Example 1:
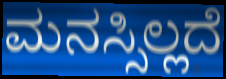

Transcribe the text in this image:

ಮನಸ್ಸಿಲ್ಲದೆ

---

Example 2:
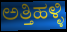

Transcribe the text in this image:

ಅತ್ತಿಹಳ್ಳಿ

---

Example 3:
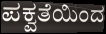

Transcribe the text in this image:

ಪಕ್ವತೆಯಿಂದ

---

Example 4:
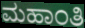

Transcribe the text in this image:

ಮಹಾಂತಿ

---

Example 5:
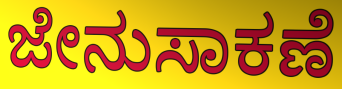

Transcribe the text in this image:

ಜೇನುಸಾಕಣೆ